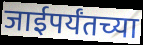
जाईपर्यंतच्या